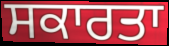
ਸਕਾਰਤਾ